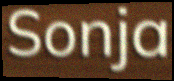
Sonja